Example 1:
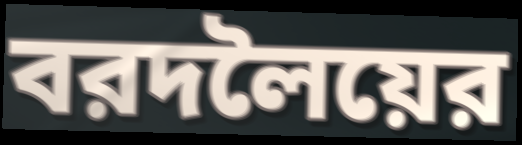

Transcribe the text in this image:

বরদলৈয়ের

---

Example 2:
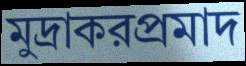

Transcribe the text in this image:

মুদ্রাকরপ্রমাদ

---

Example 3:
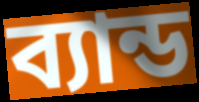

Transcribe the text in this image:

ব্যান্ড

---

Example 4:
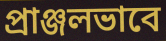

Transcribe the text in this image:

প্রাঞ্জলভাবে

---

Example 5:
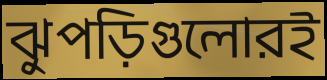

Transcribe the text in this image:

ঝুপড়িগুলোরই